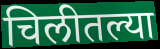
चिलीतल्या